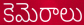
కెమెరాలు